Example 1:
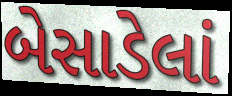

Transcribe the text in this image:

બેસાડેલાં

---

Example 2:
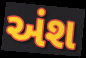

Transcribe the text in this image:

અંશ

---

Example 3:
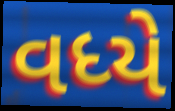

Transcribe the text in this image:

વધ્યે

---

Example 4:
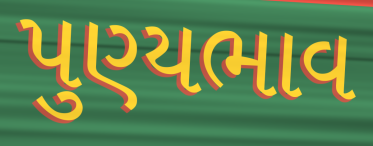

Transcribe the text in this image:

પુણ્યભાવ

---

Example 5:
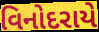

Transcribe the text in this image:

વિનોદરાયે